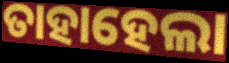
ତାହାହେଲା